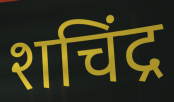
शचिंद्र